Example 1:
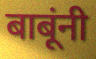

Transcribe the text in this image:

बाबूंनी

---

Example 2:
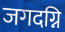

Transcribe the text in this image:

जगदग्नि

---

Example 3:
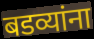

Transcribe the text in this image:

बडव्यांना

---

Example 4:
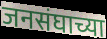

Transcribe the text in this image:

जनसंघाच्या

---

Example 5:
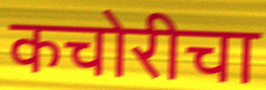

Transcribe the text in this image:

कचोरीचा